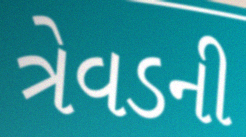
ત્રેવડની